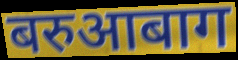
बरुआबाग